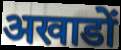
अखाडों